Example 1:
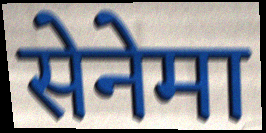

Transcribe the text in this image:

सेनेमा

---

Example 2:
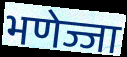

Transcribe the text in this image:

भणेज्जा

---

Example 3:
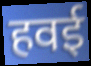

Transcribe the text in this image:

हवई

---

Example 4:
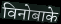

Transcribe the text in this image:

विनोबाके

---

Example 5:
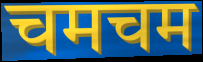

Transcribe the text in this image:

चमचम